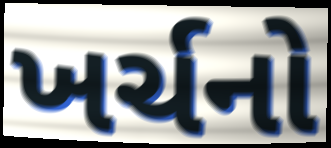
ખર્ચનો